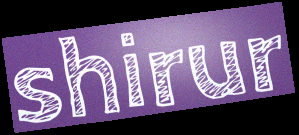
shirur